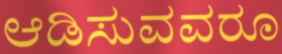
ಆಡಿಸುವವರೂ